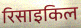
रिसाइकिल